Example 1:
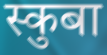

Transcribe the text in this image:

स्कुबा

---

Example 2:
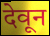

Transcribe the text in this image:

देवून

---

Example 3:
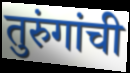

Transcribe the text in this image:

तुरुंगांची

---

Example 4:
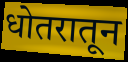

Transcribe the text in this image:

धोतरातून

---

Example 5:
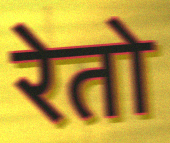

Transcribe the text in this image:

रेतो